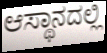
ಆಸ್ಥಾನದಲ್ಲಿ